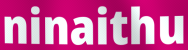
ninaithu